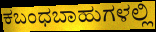
ಕಬಂಧಬಾಹುಗಳಲ್ಲಿ